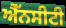
ਐੱਨਸੀਟੀ